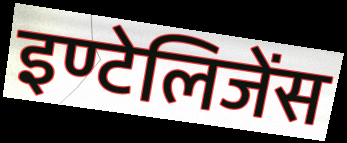
इण्टेलिजेंस